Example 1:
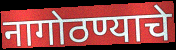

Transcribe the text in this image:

नागोठण्याचे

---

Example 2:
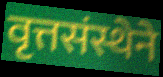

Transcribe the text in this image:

वृत्तसंस्थेने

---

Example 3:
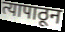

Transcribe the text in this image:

त्यापाठून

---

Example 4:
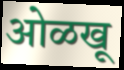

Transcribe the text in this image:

ओळखू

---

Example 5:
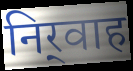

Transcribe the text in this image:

निर्वाह